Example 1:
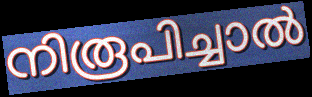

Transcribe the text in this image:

നിരൂപിച്ചാൽ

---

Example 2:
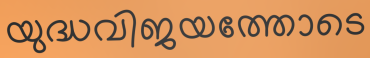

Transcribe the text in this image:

യുദ്ധവിജയത്തോടെ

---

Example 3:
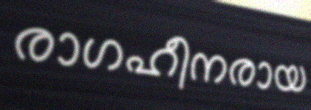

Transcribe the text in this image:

രാഗഹീനരായ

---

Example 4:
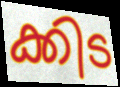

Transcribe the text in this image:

ക്കിട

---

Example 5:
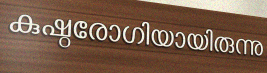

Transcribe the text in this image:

കുഷ്ഠരോഗിയായിരുന്നു